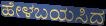
ಹೇಳಬಯಸಿದ